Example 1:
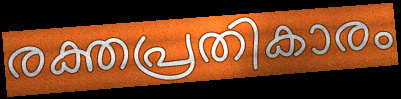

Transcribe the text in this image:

രക്തപ്രതികാരം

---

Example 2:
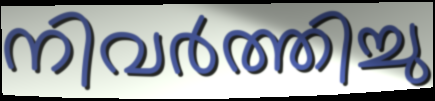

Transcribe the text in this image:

നിവർത്തിച്ചു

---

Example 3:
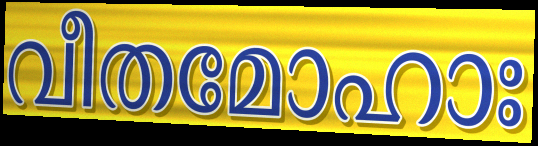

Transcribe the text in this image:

വീതമോഹാഃ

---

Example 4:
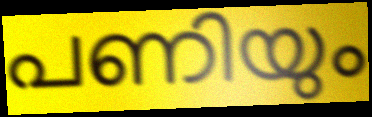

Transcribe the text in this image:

പണിയും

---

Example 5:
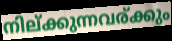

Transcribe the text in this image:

നില്ക്കുന്നവര്ക്കും